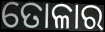
ତୋଳାର